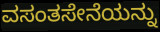
ವಸಂತಸೇನೆಯನ್ನು